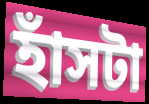
হাঁসটা